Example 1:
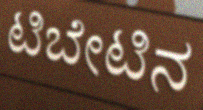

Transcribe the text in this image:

ಟಿಬೇಟಿನ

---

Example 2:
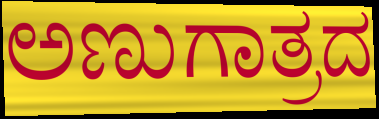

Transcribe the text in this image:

ಅಣುಗಾತ್ರದ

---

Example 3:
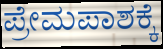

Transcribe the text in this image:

ಪ್ರೇಮಪಾಶಕ್ಕೆ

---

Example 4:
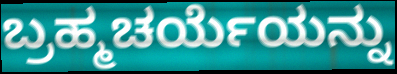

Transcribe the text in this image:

ಬ್ರಹ್ಮಚರ್ಯೆಯನ್ನು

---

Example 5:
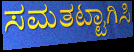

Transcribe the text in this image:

ಸಮತಟ್ಟಾಗಿಸಿ